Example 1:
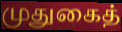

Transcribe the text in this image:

முதுகைத்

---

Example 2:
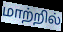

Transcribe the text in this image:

மாற்றில்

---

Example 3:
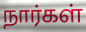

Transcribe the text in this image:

நார்கள்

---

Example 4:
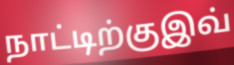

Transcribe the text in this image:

நாட்டிற்குஇவ்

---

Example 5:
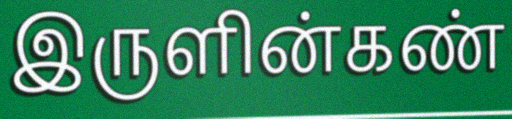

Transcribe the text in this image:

இருளின்கண்